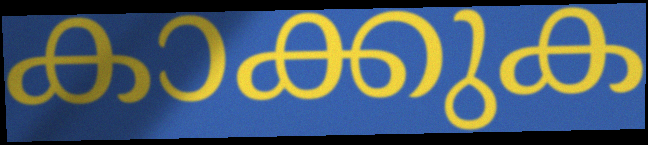
കാക്കുക